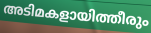
അടിമകളായിത്തീരും